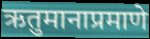
ऋतुमानाप्रमाणे